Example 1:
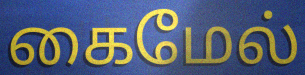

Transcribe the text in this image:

கைமேல்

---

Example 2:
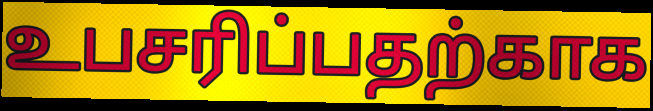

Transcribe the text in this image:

உபசரிப்பதற்காக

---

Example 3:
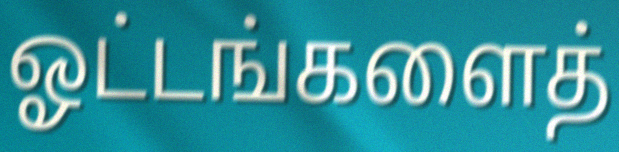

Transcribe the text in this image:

ஓட்டங்களைத்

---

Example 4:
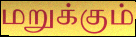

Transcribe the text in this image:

மறுக்கும்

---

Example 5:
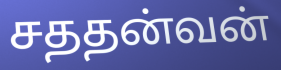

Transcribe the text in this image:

சததன்வன்